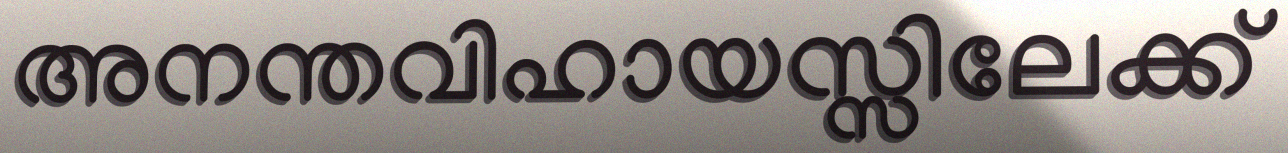
അനന്തവിഹായസ്സിലേക്ക്